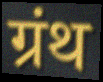
ग्रंथ